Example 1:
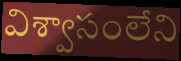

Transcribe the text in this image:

విశ్వాసంలేని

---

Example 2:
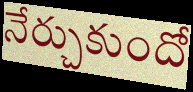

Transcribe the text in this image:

నేర్చుకుందో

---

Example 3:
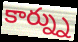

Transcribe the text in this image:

కార్న్ను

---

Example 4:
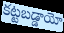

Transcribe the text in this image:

కట్టబడ్డాయో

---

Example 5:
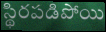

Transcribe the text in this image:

స్థిరపడిపోయి